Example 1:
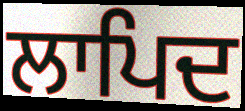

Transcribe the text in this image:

ਲਾਪਿਦ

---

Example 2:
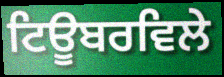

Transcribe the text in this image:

ਟਿਊਬਰਵਿਲੇ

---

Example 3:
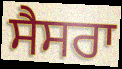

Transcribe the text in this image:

ਸੈਸਰਾ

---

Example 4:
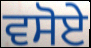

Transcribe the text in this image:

ਵਸੋਏ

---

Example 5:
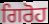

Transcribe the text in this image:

ਗਿਰੋਹ